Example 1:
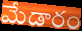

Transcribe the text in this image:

మేడారం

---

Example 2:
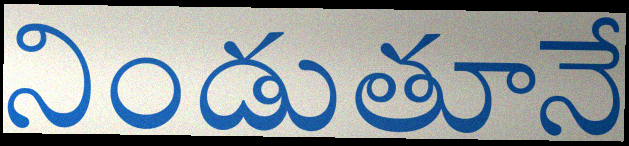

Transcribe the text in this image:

నిండుతూనే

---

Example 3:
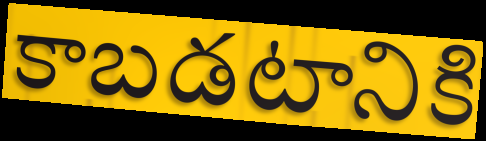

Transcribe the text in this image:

కాబడటానికి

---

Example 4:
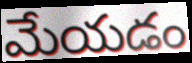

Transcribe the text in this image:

మేయడం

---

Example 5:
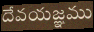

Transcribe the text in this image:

దేవయజ్ఞము